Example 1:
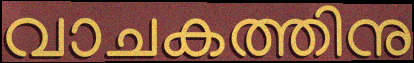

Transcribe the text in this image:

വാചകത്തിനു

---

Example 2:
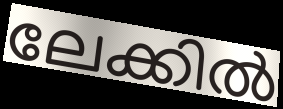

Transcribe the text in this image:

ലേക്കിൽ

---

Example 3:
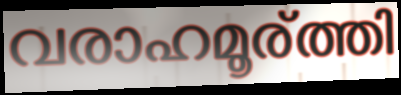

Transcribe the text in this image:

വരാഹമൂര്ത്തി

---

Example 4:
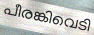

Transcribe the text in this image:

പീരങ്കിവെടി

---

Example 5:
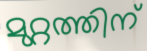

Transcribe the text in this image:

മുറ്റത്തിന്